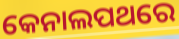
କେନାଲପଥରେ